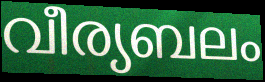
വീര്യബലം